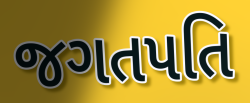
જગતપતિ